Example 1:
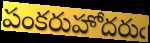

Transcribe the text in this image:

పంకరుహోదరుఁ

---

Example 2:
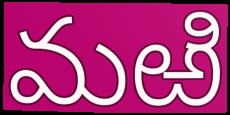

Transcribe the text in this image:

మఱి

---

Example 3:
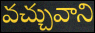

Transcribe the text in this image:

వచ్చువాని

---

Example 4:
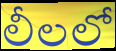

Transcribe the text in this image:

లీలలో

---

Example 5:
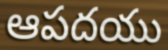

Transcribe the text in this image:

ఆపదయు